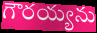
గౌరయ్యను